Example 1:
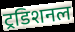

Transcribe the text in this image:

ट्रडिशनल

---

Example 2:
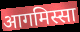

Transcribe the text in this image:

आगमिस्सा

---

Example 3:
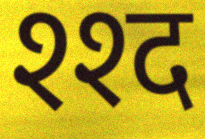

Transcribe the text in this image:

श्श्द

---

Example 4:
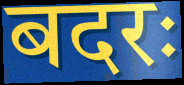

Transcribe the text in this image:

बदरः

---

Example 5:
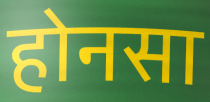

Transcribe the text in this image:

होनसा